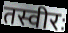
तस्वीरः